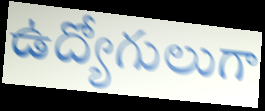
ఉద్యోగులుగా